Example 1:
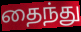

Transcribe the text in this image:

தைந்து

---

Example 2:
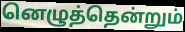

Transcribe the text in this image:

னெழுத்தென்றும்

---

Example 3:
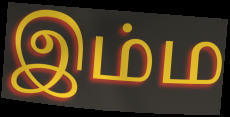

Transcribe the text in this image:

இம்ம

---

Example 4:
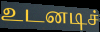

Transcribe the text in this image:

உடனடிச்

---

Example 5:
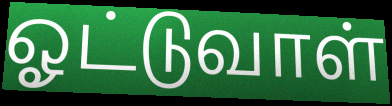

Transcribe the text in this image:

ஓட்டுவாள்